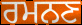
ਰਮਨਣ